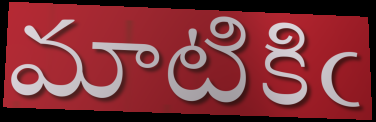
మాటికిఁ